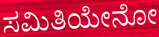
ಸಮಿತಿಯೇನೋ